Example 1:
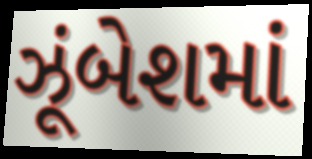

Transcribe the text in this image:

ઝૂંબેશમાં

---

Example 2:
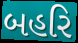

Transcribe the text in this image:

બહરિ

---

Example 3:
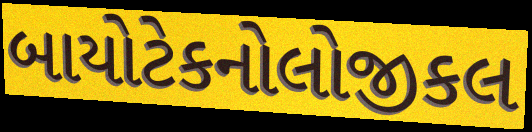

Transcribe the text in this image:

બાયોટેકનોલોજીકલ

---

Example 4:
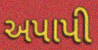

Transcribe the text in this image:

અપાપી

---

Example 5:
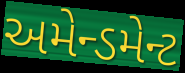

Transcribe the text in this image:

અમેન્ડમેન્ટ